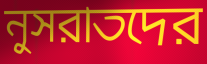
নুসরাতদের